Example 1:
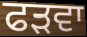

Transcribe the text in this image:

ਫੜਵਾ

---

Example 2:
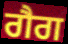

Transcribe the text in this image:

ਗੈਗ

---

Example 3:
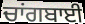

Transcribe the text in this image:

ਚਾਂਗਬਾਈ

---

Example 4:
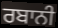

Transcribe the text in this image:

ਰਬਾਨੀ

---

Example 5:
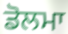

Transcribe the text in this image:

ਡੋਲਮਾ